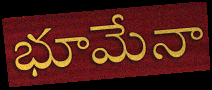
భూమేనా